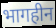
भागहीन